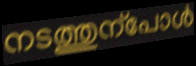
നടത്തുന്പോൾ